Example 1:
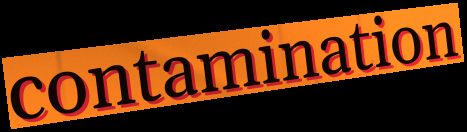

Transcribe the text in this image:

contamination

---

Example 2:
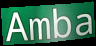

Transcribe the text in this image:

Amba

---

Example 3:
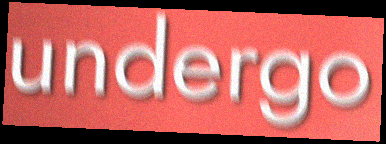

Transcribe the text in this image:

undergo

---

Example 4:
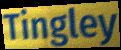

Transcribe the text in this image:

Tingley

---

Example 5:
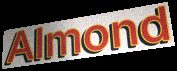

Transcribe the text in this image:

Almond